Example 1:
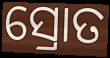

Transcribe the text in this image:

ସ୍ରୋତ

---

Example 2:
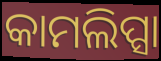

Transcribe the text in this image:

କାମଲିପ୍ସା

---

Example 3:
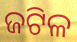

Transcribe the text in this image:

ଜଟିଳ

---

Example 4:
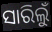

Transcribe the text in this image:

ସାରିଲୁଁ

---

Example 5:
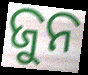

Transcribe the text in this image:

ଜୁନ